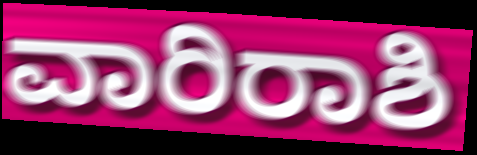
ವಾರಿರಾಶಿ